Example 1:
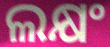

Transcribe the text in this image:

ଲକ୍ଷଂ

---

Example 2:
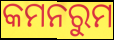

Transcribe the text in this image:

କମନରୁମ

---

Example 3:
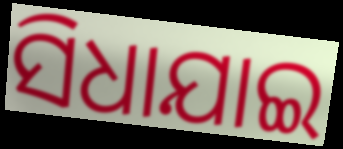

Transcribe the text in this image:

ସିଧାଯାଇ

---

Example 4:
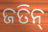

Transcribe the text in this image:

ଜତିନ୍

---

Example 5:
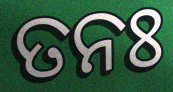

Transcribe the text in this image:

ତନଃ